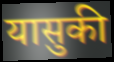
यासुकी